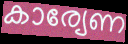
കാര്യേണ